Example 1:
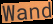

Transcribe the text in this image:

Wand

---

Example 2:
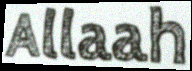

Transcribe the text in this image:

Allaah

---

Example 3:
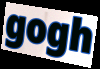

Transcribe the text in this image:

gogh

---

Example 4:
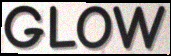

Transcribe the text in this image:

GLOW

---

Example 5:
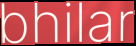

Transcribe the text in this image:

bhilar